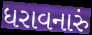
ધરાવનારું